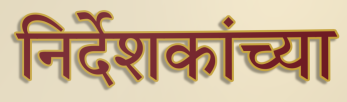
निर्देशकांच्या